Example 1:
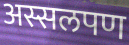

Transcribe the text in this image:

अस्सलपण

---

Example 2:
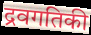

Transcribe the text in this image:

द्रवगतिकी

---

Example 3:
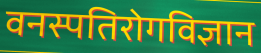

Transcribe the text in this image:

वनस्पतिरोगविज्ञान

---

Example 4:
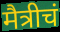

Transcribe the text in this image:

मैत्रीचं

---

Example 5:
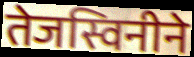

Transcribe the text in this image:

तेजस्विनीने